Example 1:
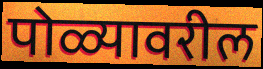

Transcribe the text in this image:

पोळ्यावरील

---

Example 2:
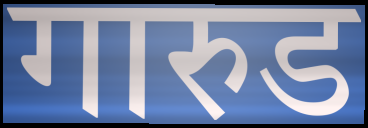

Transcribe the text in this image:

गारुड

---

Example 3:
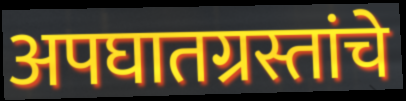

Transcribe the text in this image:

अपघातग्रस्तांचे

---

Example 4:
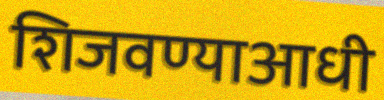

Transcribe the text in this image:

शिजवण्याआधी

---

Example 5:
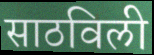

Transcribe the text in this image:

साठविली